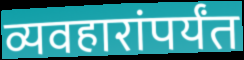
व्यवहारांपर्यंत